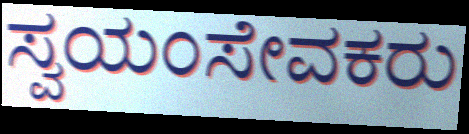
ಸ್ವಯಂಸೇವಕರು